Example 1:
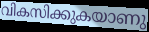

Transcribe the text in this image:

വികസിക്കുകയാണു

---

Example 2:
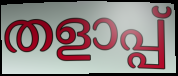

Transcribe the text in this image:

തളാപ്പ്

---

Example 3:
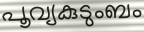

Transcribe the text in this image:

പൂവ്യകുടുംബം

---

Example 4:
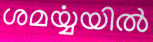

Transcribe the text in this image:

ശമൎയ്യയിൽ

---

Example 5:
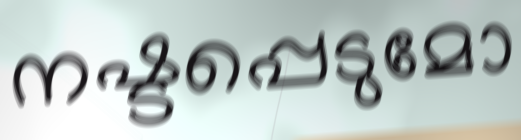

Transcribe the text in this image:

നഷ്ടപ്പെടുമോ